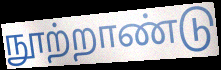
நூற்றாண்டு